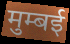
मुम्बई